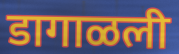
डागाळली